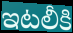
ఇటలీకి